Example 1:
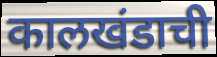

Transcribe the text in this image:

कालखंडाची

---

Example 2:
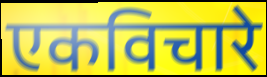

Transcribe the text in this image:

एकविचारे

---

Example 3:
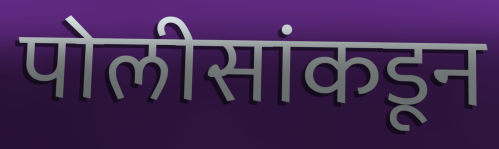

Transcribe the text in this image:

पोलीसांकडून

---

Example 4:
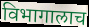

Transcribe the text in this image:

विभागालाच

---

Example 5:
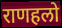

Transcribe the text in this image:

राणहलो